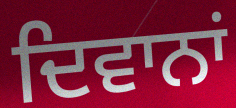
ਦਿਵਾਨਾਂ